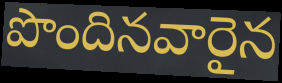
పొందినవారైన